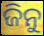
ଜିନୁ